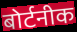
बोर्टनीक